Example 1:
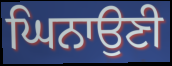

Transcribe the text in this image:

ਘਿਨਾਉਣੀ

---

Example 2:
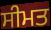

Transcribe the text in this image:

ਸੀਮਤ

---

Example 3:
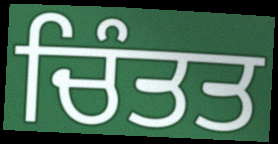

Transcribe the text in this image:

ਚਿੰਤਤ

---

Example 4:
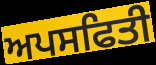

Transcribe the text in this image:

ਅਪਸਫਿਤੀ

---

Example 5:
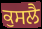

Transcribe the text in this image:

ਕੁਸਲੈ